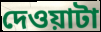
দেওয়াটা